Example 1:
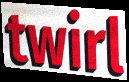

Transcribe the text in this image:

twirl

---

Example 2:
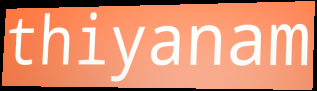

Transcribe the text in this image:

thiyanam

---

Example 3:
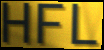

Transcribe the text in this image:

HFL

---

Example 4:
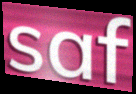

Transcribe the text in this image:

saf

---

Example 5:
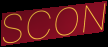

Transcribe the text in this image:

SCON